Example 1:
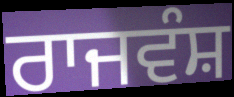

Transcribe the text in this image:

ਰਾਜਵੰਸ਼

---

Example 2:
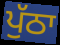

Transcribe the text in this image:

ਪੁੱਠਾ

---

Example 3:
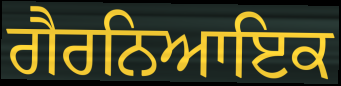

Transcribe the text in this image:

ਗੈਰਨਿਆਇਕ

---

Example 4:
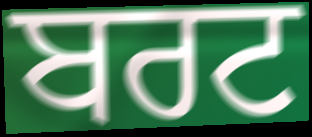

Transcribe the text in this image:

ਬਰਟ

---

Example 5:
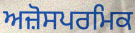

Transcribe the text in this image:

ਅਜ਼ੋਸਪਰਮਿਕ